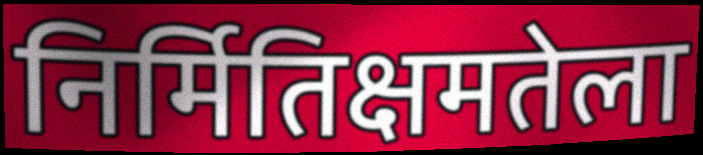
निर्मितिक्षमतेला